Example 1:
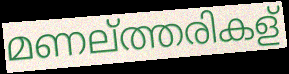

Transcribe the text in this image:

മണല്ത്തരികള്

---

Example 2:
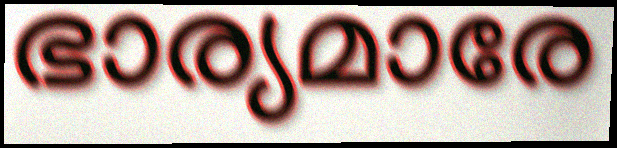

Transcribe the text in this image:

ഭാര്യമാരേ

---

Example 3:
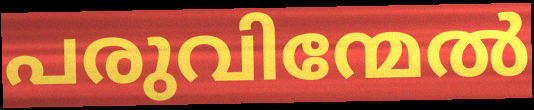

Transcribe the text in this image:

പരുവിന്മേൽ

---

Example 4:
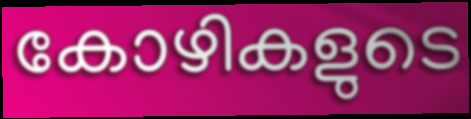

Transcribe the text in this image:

കോഴികളുടെ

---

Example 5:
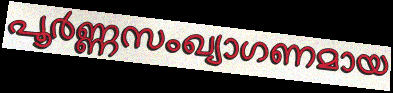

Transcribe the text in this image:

പൂർണ്ണസംഖ്യാഗണമായ